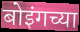
बोइंगच्या